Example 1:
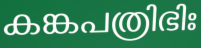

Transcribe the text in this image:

കങ്കപത്രിഭിഃ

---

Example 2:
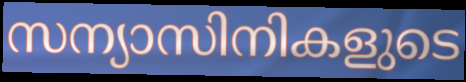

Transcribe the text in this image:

സന്യാസിനികളുടെ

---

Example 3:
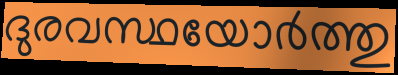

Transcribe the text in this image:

ദുരവസ്ഥയോർത്തു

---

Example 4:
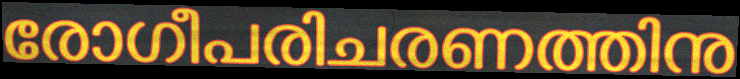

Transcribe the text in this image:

രോഗീപരിചരണത്തിനു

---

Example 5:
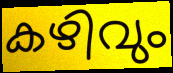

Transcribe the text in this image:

കഴിവും